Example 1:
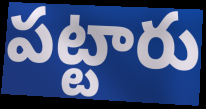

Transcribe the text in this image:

పట్టారు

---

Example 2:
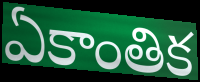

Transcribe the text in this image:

ఏకాంతిక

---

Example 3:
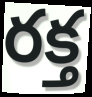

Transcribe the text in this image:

రక్త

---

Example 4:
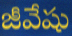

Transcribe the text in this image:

జీవేషు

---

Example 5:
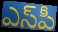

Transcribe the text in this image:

ఎస్‌పీ